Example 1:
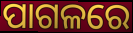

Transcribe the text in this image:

ପାଗଳରେ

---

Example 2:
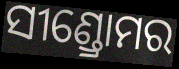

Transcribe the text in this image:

ସୀଣ୍ଡ୍ରୋମର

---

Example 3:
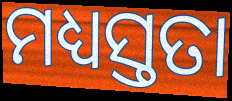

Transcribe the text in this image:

ମଧ୍ୟସ୍ତତା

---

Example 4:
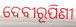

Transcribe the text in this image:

ଦେବୀରୂପିଣୀ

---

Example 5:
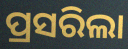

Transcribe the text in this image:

ପ୍ରସରିଲା